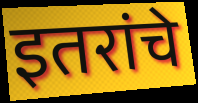
इतरांचे